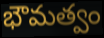
భౌమత్వం